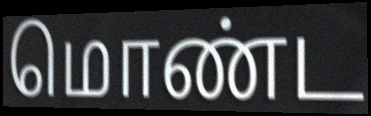
மொண்ட